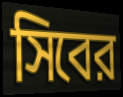
সিবের